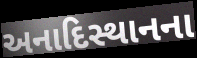
અનાદિસ્થાનના